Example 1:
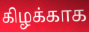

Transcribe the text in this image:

கிழக்காக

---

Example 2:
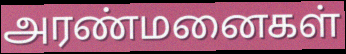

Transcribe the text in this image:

அரண்மனைகள்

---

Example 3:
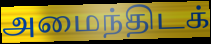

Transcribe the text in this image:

அமைந்திடக்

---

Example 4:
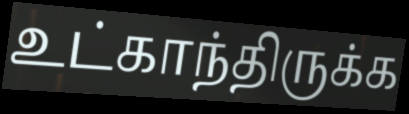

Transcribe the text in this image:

உட்காந்திருக்க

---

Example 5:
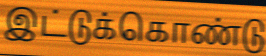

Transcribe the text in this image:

இட்டுக்கொண்டு